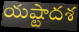
యష్టాదశ